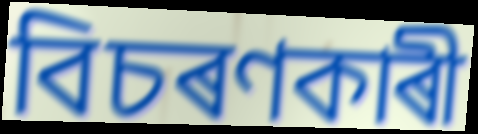
বিচৰণকাৰী